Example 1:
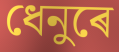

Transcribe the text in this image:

ধেনুৰে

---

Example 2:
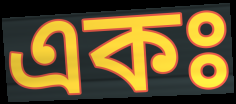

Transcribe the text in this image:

একঃ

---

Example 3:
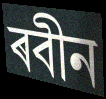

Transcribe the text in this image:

ৰবীন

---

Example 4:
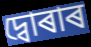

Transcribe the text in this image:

দ্বোৰাৰ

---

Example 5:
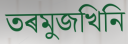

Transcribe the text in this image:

তৰমুজখিনি